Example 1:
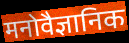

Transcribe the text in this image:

मनोवैज्ञानिक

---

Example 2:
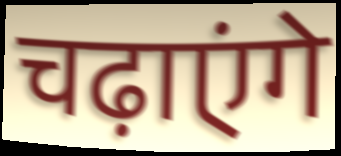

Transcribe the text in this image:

चढ़ाएंगे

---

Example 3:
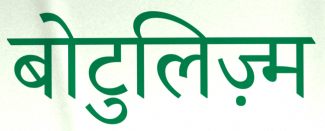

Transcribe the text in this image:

बोटुलिज़्म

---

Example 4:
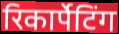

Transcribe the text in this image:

रिकार्पेटिंग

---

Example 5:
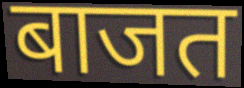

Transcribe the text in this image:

बाजत